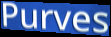
Purves